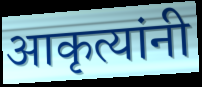
आकृत्यांनी